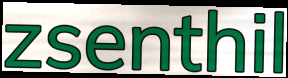
zsenthil